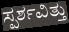
ಸ್ಪರ್ಶವಿತ್ತು